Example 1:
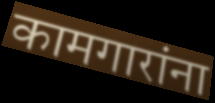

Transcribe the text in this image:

कामगारांना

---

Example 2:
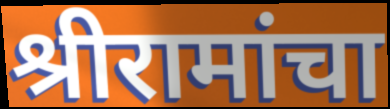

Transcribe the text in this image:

श्रीरामांचा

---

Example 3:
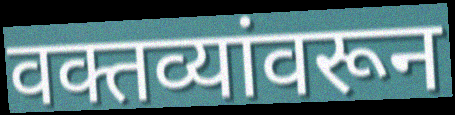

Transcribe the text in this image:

वक्तव्यांवरून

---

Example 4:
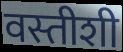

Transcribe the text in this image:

वस्‍तीशी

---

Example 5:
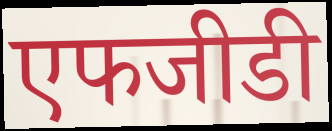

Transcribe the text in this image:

एफजीडी